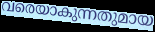
വരെയാകുന്നതുമായ